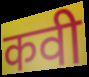
कवी